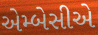
એમ્બેસીએ